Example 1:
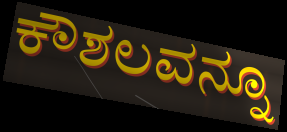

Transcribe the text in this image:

ಕೌಶಲವನ್ನೂ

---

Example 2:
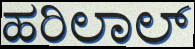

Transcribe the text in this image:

ಹರಿಲಾಲ್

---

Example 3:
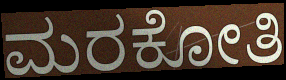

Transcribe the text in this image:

ಮರಕೋತಿ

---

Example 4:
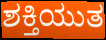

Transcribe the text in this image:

ಶಕ್ತಿಯುತ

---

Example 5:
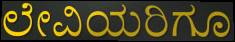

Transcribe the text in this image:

ಲೇವಿಯರಿಗೂ